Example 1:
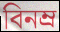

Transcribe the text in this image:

বিনম্ৰ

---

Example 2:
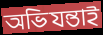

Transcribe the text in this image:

অভিযন্তাই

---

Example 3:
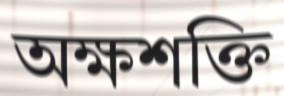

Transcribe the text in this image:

অক্ষশক্তি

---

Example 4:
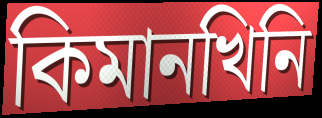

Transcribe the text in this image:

কিমানখিনি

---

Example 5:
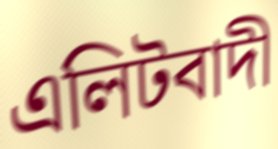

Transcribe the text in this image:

এলিটবাদী